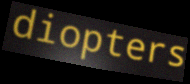
diopters